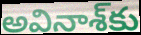
అవినాశ్‌కు